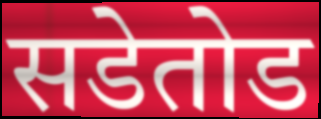
सडेतोड